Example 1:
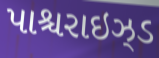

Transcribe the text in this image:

પાશ્ચરાઇઝ્ડ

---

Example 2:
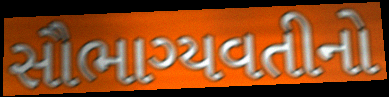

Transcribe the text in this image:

સૌભાગ્યવતીનો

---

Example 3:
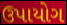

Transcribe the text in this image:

ઉપાયોગ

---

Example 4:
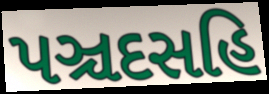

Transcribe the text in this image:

પઞ્ચદસહિ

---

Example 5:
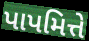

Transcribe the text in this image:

પાપમિત્તે